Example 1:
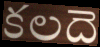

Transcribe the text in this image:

కలదె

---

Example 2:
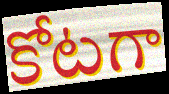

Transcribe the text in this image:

కోటగా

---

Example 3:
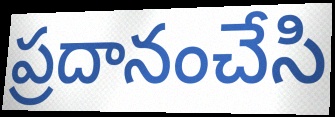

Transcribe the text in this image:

ప్రదానంచేసి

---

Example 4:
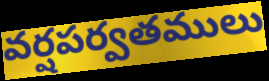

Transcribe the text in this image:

వర్షపర్వతములు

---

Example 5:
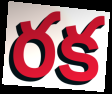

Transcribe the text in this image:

రక